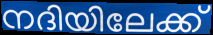
നദിയിലേക്ക്